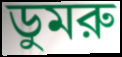
ডুমরু